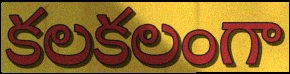
కలకలంగా